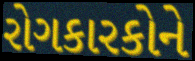
રોગકારકોને